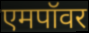
एमपॉवर